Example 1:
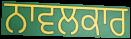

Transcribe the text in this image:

ਨਾਵਲਕਾਰ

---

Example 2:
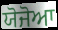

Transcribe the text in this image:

ਯੋਜੋਆ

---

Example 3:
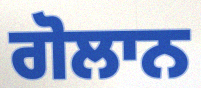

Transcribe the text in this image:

ਗੋਲਾਨ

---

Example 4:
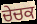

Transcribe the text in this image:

ਚੇਚਕ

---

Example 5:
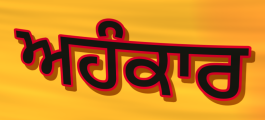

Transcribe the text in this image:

ਅਹੰਕਾਰ